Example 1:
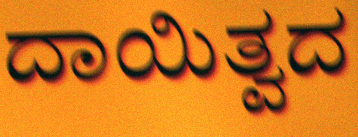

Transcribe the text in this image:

ದಾಯಿತ್ವದ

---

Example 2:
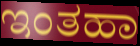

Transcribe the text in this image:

ಇಂತಹಾ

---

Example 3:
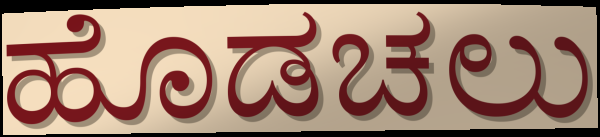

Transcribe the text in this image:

ಹೊಡಚಲು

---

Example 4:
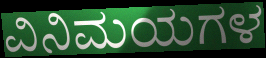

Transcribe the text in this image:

ವಿನಿಮಯಗಳ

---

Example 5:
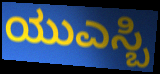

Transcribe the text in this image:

ಯುಎಸ್ಬಿ